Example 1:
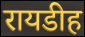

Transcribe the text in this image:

रायडीह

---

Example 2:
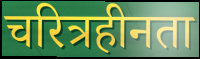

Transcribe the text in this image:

चरित्रहीनता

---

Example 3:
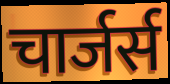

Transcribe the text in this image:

चार्जर्स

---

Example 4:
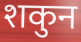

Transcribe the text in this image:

शकुन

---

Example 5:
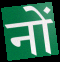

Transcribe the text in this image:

नों